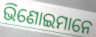
ଭିଣୋଇମାନେ